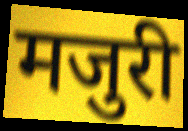
मजुरी